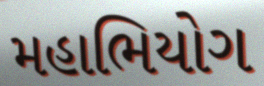
મહાભિયોગ